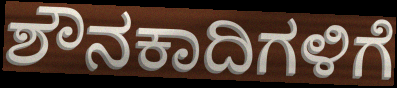
ಶೌನಕಾದಿಗಳಿಗೆ